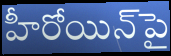
హీరోయిన్‌పై